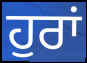
ਹੁਰਾਂ